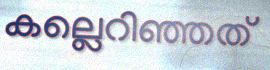
കല്ലെറിഞ്ഞത്